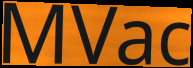
MVac